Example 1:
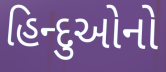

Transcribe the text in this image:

હિન્દુઓનો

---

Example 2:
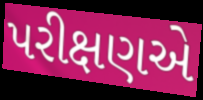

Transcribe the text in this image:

પરીક્ષણએ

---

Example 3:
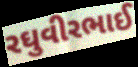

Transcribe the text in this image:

રઘુવીરભાઈ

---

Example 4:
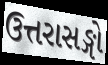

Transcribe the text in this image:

ઉત્તરાસઙ્ગો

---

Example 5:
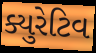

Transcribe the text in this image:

ક્યુરેટિવ